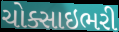
ચોક્સાઇભરી